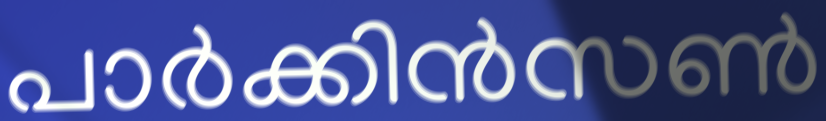
പാർക്കിൻസൺ